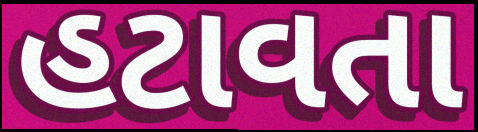
હટાવતા